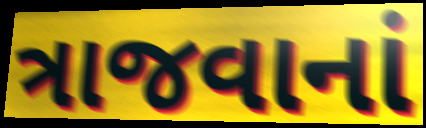
ત્રાજવાનાં